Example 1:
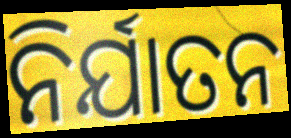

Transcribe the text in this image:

ନିର୍ଯାତନ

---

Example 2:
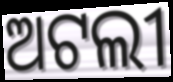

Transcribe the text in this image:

ଅଟଲୀ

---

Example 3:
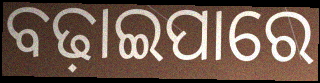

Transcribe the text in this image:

ବଢ଼ାଇପାରେ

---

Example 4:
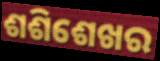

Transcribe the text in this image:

ଶଶିଶେଖର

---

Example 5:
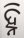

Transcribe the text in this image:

ହ୍ନି